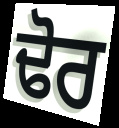
ਢੋਰ